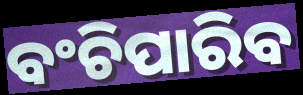
ବଂଚିପାରିବ